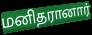
மனிதரானார்